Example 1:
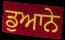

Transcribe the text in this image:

ਡੁਆਨੇ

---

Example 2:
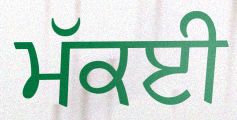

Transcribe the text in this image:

ਮੱਕਈ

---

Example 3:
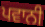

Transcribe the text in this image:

ਪਵਾਨੀ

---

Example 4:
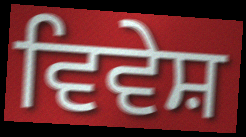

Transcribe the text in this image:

ਵਿਵੇਸ਼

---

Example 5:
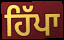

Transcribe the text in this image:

ਹਿੱਪਾ